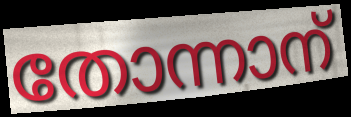
തോന്നാന്